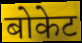
बोकेट